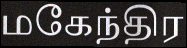
மகேந்திர